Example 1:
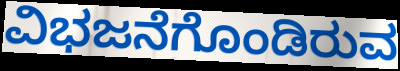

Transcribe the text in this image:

ವಿಭಜನೆಗೊಂಡಿರುವ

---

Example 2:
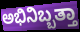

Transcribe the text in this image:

ಅಭಿನಿಬ್ಬತ್ತಾ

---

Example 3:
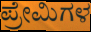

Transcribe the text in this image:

ಪ್ರೇಮಿಗಳ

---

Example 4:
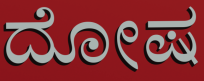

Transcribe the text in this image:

ದೋಷ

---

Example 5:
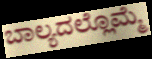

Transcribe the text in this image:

ಬಾಲ್ಯದಲ್ಲೊಮ್ಮೆ